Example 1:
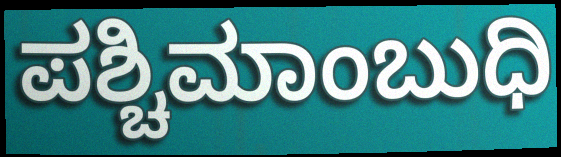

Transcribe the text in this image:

ಪಶ್ಚಿಮಾಂಬುಧಿ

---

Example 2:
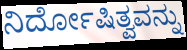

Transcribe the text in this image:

ನಿರ್ದೋಷಿತ್ವವನ್ನು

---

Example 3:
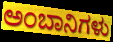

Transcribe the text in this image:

ಅಂಬಾನಿಗಳು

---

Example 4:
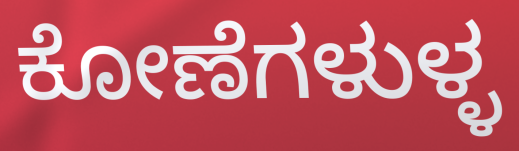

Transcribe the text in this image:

ಕೋಣೆಗಳುಳ್ಳ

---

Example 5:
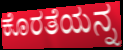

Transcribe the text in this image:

ಕೊರತೆಯನ್ನ